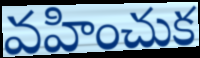
వహించుక